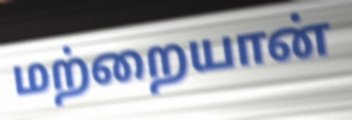
மற்றையான்